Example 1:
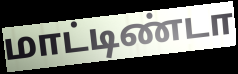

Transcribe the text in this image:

மாட்டிண்டா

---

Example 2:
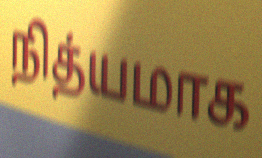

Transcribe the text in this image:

நித்யமாக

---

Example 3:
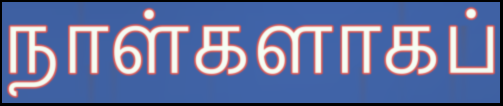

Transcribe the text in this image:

நாள்களாகப்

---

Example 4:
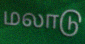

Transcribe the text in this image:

மலாடு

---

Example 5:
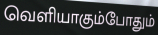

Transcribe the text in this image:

வெளியாகும்போதும்